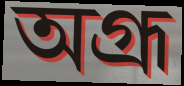
অগ্রূ